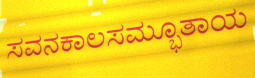
ಸವನಕಾಲಸಮ್ಭೂತಾಯ